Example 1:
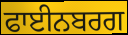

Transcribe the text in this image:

ਫਾਈਨਬਰਗ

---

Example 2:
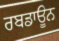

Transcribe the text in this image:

ਰਬਡਾਊਨ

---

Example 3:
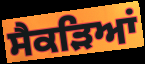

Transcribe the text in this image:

ਸੈਕੜਿਆਂ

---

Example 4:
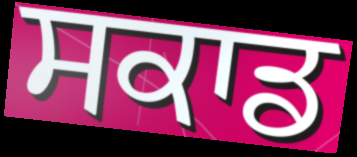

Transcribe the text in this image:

ਸਕਾਡ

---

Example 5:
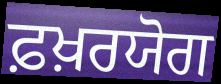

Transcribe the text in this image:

ਫ਼ਖ਼ਰਯੋਗ